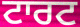
ਟਾਰਟ